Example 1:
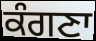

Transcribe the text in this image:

ਕੰਗਣਾ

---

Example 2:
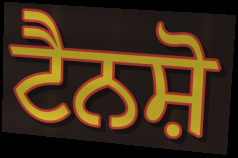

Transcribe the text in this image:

ਟੈਨਸ਼ੋ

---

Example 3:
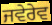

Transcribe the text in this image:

ਜਵੇਰੇਵ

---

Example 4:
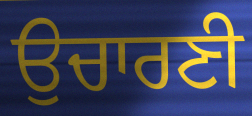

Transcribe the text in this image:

ਉਚਾਰਣੀ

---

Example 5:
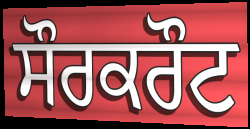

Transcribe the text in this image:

ਸੌਰਕਰੌਟ